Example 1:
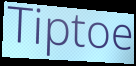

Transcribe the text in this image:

Tiptoe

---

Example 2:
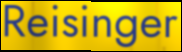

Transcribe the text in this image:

Reisinger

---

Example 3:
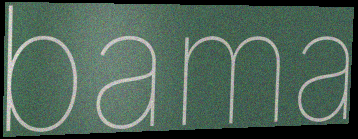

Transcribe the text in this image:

bama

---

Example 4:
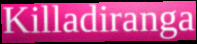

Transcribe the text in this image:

Killadiranga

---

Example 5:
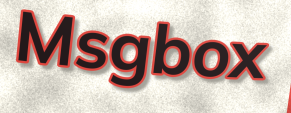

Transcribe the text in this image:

Msgbox